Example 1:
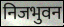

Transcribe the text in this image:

निजभुवन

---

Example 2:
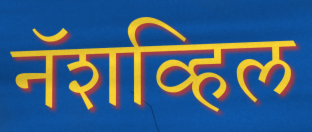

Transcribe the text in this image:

नॅशव्हिल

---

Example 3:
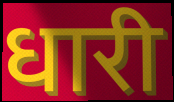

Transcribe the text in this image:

धारी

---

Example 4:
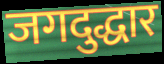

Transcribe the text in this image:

जगदुद्धार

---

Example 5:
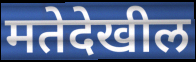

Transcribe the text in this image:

मतेदेखील